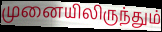
முனையிலிருந்தும்